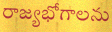
రాజ్యభోగాలను